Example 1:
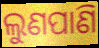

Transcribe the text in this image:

ଲୁଣପାଣି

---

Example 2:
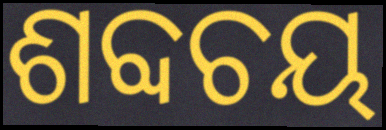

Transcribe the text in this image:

ଶବ୍ଦଚୟ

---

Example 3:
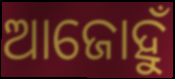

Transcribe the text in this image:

ଆଜୋହୁଁ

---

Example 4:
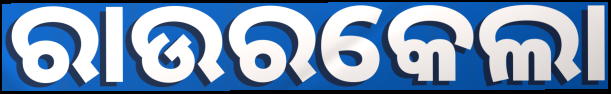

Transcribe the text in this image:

ରାଉରକେଲା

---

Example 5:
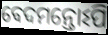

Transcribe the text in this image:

ବେଦମନ୍ତୋଽପି